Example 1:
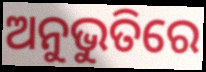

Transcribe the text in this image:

ଅନୁଭୁତିରେ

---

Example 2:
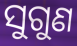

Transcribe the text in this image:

ସୁଗୁଣ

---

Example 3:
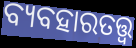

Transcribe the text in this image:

ବ୍ୟବହାରତତ୍ତ୍ବ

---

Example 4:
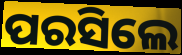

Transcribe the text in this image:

ପରସିଲେ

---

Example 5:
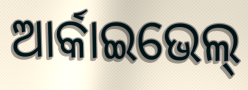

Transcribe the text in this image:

ଆର୍କାଇଭେଲ୍